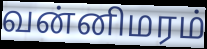
வன்னிமரம்